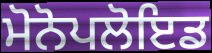
ਮੋਨੋਪਲੋਇਡ